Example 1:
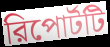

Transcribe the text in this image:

রিপোর্টটি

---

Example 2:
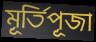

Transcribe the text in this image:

মূর্তিপূজা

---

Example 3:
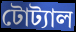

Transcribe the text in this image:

টোট্যাল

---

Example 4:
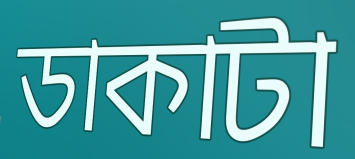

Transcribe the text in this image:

ডাকাটা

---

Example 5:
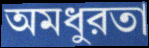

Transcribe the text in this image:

অমধুরতা